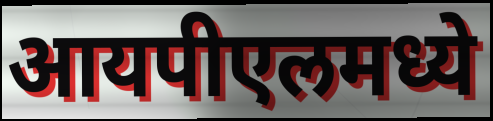
आयपीएलमध्ये